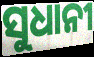
ସୁଧାନୀ